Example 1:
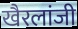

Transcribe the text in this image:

खैरलांजी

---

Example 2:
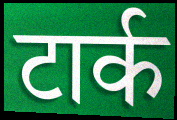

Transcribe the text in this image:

टार्क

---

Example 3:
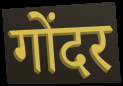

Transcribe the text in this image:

गोंदर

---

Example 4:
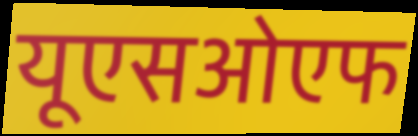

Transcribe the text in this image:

यूएसओएफ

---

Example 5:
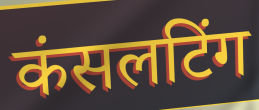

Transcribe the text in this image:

कंसलटिंग